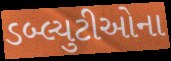
ડબ્લ્યુટીઓના